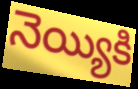
నెయ్యికి